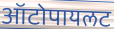
ऑटोपायलट